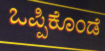
ಒಪ್ಪಿಕೊಂಡೆ